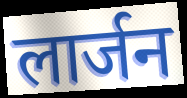
लार्जन